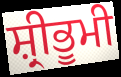
ਸ਼੍ਰੀਭੂਮੀ